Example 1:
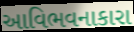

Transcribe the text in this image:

આવિભવનાકારા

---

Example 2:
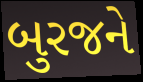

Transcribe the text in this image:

બુરજને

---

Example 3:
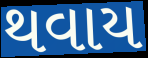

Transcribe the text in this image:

થવાય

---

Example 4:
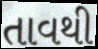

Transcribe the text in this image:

તાવથી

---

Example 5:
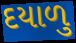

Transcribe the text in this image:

દયાળુ